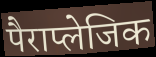
पैराप्लेजिक